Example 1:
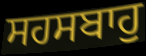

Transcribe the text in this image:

ਸਹਸਬਾਹੁ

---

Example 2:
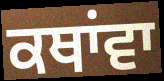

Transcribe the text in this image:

ਕਥਾਂਵਾ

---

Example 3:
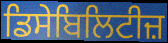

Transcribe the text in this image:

ਡਿਸੇਬਿਲਿਟੀਜ਼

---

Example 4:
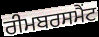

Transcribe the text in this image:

ਰੀਮਬਰਸਮੈਂਟ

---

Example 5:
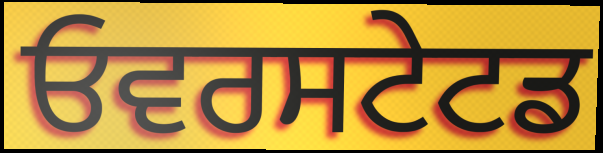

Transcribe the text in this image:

ਓਵਰਸਟੇਟਡ